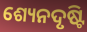
ଶ୍ୟେନଦୃଷ୍ଟି